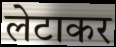
लेटाकर